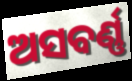
ଅସବର୍ଣ୍ଣ